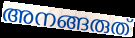
അനങ്ങരുത്